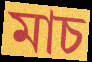
মাচ